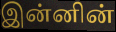
இன்னின்